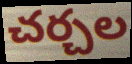
చర్చల